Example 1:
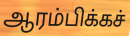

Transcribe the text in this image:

ஆரம்பிக்கச்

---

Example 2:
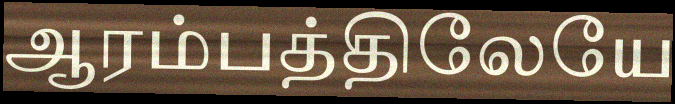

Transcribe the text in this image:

ஆரம்பத்திலேயே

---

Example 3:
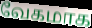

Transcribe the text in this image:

வேகமாக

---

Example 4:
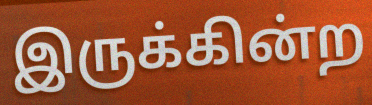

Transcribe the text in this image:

இருக்கின்ற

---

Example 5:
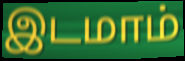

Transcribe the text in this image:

இடமாம்